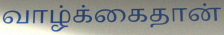
வாழ்க்கைதான்